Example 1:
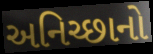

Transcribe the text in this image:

અનિચ્છાનો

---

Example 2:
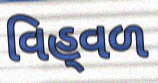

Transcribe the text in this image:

વિહ્‌વળ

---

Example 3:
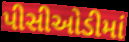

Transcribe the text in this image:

પીસીઓડીમાં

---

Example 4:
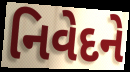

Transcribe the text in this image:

નિવેદને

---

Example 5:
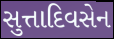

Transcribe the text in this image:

સુત્તાદિવસેન